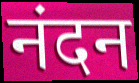
नंदन